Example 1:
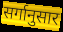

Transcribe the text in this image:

सर्गानुसार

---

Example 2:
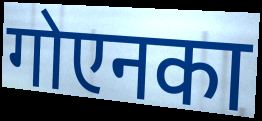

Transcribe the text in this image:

गोएनका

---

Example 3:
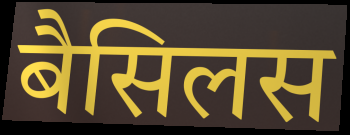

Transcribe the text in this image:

बैसिलस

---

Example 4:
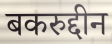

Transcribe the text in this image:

बकरुद्दीन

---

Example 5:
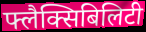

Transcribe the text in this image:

फ्लैक्सिबिलिटी